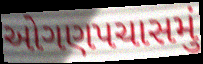
ઓગણપચાસમું